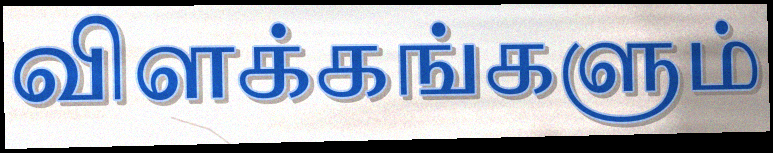
விளக்கங்களும்